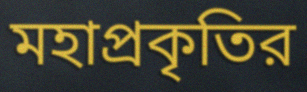
মহাপ্রকৃতির